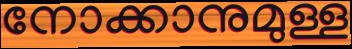
നോക്കാനുമുള്ള